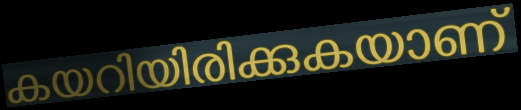
കയറിയിരിക്കുകയാണ്